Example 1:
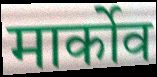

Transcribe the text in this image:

मार्कोव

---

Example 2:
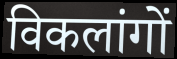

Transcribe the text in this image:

विकलांगों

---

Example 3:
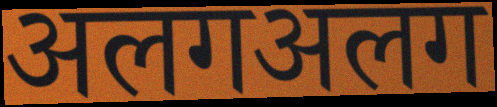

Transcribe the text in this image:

अलगअलग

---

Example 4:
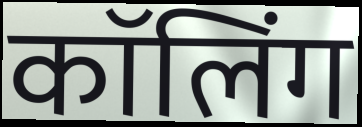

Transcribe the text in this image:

कॉलिंग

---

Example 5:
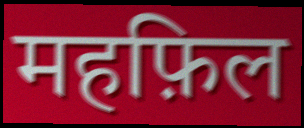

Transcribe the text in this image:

महफ़िल